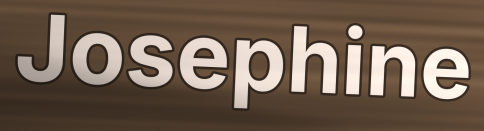
Josephine